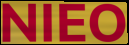
NIEO